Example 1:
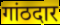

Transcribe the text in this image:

गांठदार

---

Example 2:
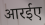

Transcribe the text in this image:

आरईए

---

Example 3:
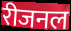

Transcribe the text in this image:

रीजनल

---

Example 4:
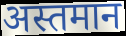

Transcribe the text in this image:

अस्तमान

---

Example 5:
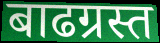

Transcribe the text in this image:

बाढग्रस्त